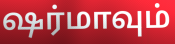
ஷர்மாவும்